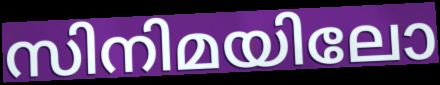
സിനിമയിലോ